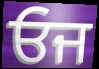
ਓਜ